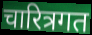
चारित्रगत